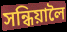
সন্ধিয়ালৈ